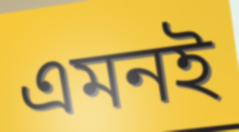
এমনই